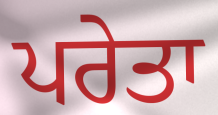
ਪਰੇਤਾ